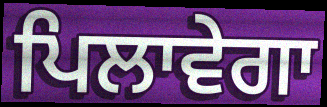
ਪਿਲਾਵੇਗਾ